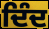
ਦਿੰਦ